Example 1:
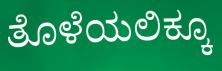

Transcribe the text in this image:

ತೊಳೆಯಲಿಕ್ಕೂ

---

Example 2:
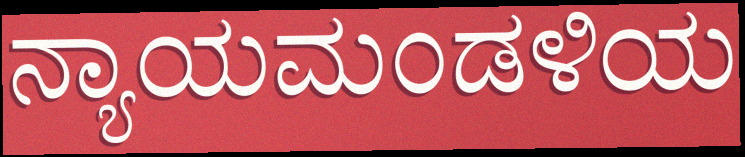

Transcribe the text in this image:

ನ್ಯಾಯಮಂಡಳಿಯ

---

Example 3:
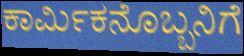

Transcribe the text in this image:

ಕಾರ್ಮಿಕನೊಬ್ಬನಿಗೆ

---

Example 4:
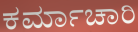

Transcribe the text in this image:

ಕರ್ಮಾಚಾರಿ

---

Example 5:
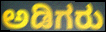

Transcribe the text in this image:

ಅಡಿಗರು